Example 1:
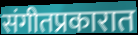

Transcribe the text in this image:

संगीतप्रकारात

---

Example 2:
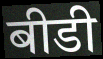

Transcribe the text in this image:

बीडी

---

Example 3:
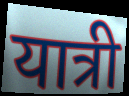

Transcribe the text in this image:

यात्री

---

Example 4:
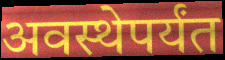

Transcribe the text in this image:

अवस्थेपर्यंत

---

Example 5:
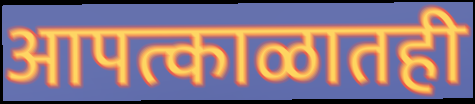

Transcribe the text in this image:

आपत्काळातही